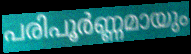
പരിപൂർണ്ണമായും